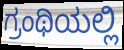
ಗ್ರಂಥಿಯಲ್ಲಿ